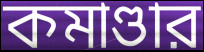
কমাণ্ডার